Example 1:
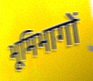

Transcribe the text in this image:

भूमिभागों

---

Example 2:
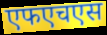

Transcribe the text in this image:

एफएचएस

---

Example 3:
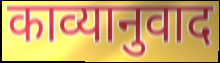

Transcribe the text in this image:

काव्यानुवाद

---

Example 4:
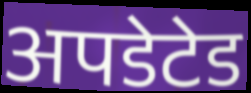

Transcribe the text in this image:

अपडेटेड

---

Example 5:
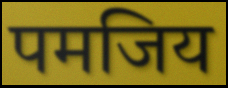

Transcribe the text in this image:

पमजिय